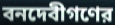
বনদেবীগণের